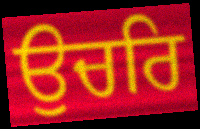
ਉਚਰਿ